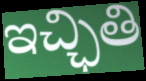
ఇచ్ఛితి